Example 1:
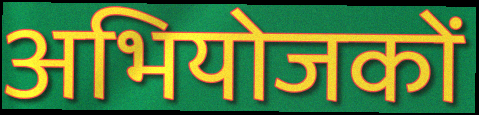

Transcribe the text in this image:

अभियोजकों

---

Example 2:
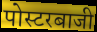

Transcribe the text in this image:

पोस्टरबाजी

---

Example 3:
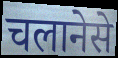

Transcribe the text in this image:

चलानेसे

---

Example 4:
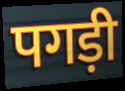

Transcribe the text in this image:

पगड़ी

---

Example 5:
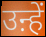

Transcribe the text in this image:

उऩ्हें